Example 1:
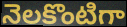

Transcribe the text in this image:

నెలకొంటిగా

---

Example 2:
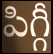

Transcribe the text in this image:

పిగ్గీ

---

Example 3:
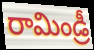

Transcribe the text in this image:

రామిండ్రీ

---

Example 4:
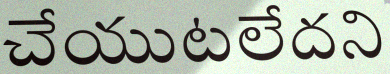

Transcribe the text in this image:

చేయుటలేదని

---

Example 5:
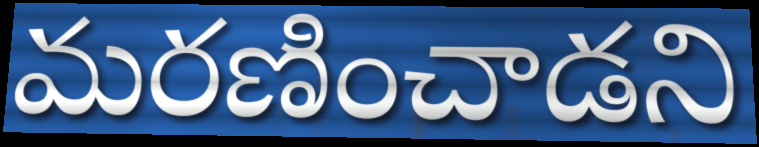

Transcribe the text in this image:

మరణించాడని